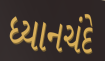
ધ્યાનચંદે